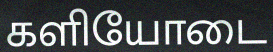
களியோடை